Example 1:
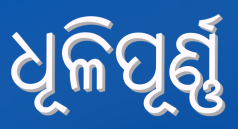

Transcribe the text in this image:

ଧୂଳିପୂର୍ଣ୍ଣ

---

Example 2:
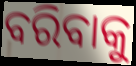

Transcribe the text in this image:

ବରିବାକୁ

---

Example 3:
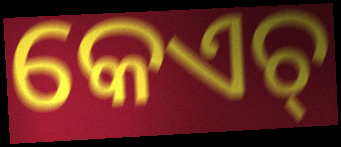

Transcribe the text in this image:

କେଏଚ୍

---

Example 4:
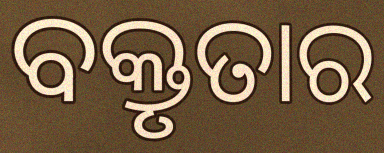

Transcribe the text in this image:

ବକ୍ତୃତାର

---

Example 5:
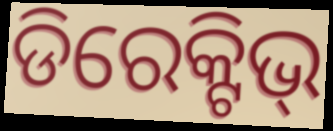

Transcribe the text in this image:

ଡିରେକ୍ଟିଭ୍